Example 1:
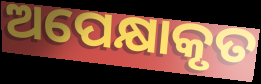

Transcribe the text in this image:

ଅପେକ୍ଷାକୃତ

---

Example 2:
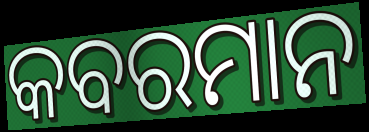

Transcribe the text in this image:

କବରମାନ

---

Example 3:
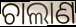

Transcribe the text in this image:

ଚାଲାଣ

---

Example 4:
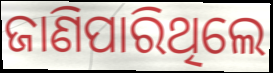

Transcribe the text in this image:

ଜାଣିପାରିଥିଲେ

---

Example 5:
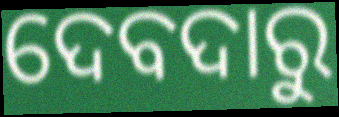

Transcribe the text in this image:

ଦେବଦାରୁ